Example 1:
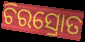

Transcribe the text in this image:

ଚିରସ୍ରୋତ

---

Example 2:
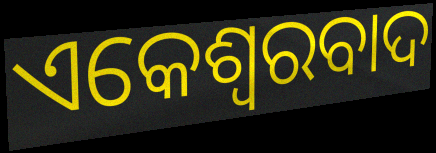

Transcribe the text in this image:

ଏକେଶ୍ୱରବାଦ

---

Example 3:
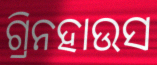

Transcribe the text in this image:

ଗ୍ରିନହାଉସ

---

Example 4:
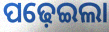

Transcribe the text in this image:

ପଢ଼େଇଲା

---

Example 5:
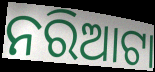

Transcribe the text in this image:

ନରିଆଟା